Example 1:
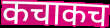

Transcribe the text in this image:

कचाकच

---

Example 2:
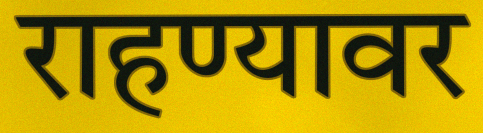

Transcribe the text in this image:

राहण्यावर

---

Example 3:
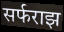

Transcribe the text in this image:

सर्फराझ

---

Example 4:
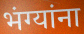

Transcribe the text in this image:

भंग्यांना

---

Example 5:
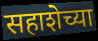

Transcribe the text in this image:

सहाशेच्या